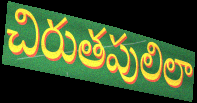
చిరుతపులిలా